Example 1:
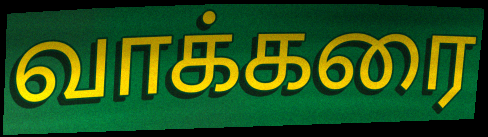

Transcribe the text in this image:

வாக்கரை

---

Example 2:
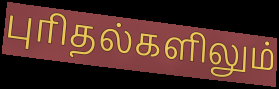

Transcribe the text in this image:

புரிதல்களிலும்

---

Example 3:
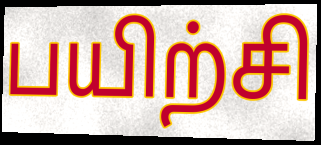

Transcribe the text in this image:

பயிற்சி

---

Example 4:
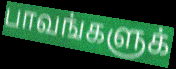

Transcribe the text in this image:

பாவங்களுக்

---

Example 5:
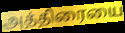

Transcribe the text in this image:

அத்திரையை